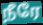
நீரே